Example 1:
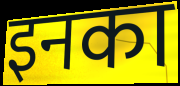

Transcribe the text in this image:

इनका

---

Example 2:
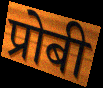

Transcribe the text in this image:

प्रोबी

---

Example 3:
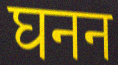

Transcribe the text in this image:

घनन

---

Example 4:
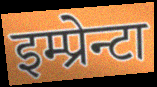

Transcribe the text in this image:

इम्प्रेन्टा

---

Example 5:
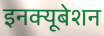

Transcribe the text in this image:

इनक्यूबेशन